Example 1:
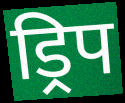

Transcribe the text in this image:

ड्रिप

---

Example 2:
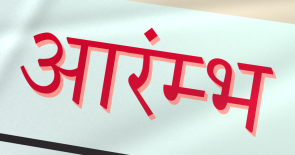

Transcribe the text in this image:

आरंम्भ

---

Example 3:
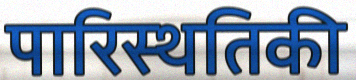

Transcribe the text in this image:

पारिस्थतिकी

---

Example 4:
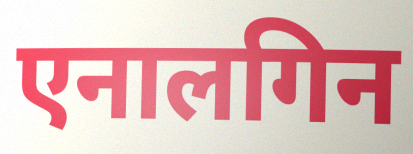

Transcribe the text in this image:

एनालगिन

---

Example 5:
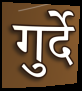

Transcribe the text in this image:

गुर्दे